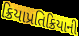
ક્રિયાપ્રતિક્રિયાની